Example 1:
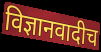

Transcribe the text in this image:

विज्ञानवादीच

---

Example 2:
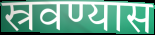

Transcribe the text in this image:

स्रवण्यास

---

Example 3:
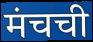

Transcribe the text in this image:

मंचची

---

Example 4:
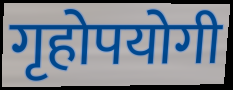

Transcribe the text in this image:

गृहोपयोगी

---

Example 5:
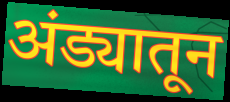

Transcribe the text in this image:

अंड्यातून